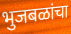
भुजबळांचा